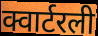
क्वार्टरली